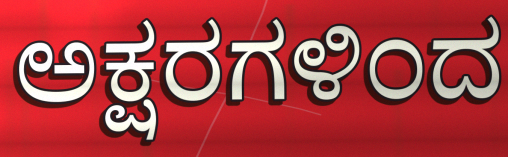
ಅಕ್ಷರಗಳಿಂದ